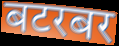
बटरबर